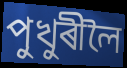
পুখুৰীলৈ